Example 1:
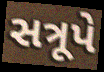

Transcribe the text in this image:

સત્રૂપે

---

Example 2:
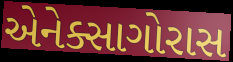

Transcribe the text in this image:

એનેક્સાગોરાસ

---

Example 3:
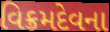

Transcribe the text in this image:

વિક્રમદેવના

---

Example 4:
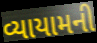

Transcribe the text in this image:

વ્યાયામની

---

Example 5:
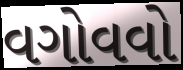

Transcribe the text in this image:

વગોવવો